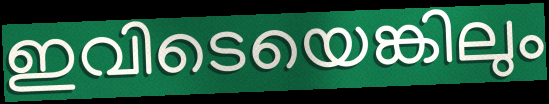
ഇവിടെയെങ്കിലും